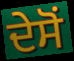
ਦੇਸੋਂ